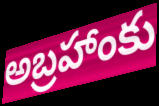
అబ్రహాంకు